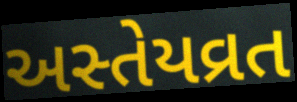
અસ્તેયવ્રત